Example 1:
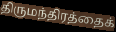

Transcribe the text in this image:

திருமந்திரத்தைக்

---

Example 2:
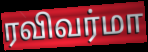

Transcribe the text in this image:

ரவிவர்மா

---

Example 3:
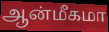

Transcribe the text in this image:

ஆன்மீகமா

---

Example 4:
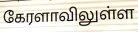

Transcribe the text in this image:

கேரளாவிலுள்ள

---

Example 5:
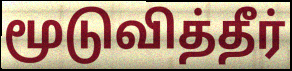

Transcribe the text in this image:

மூடுவித்தீர்